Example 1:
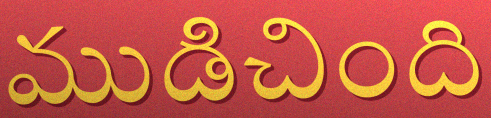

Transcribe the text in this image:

ముడిచింది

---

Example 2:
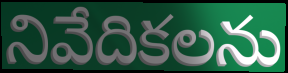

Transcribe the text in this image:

నివేదికలను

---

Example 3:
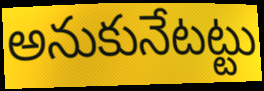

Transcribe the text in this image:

అనుకునేటట్టు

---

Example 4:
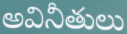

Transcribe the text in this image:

అవినీతులు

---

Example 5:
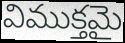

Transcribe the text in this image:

విముక్తమై